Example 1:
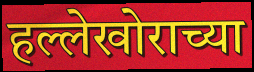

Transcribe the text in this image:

हल्लेखोराच्या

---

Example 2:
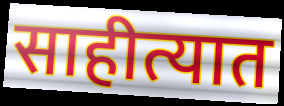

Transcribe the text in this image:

साहीत्यात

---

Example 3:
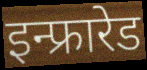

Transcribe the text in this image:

इन्फ्रारेड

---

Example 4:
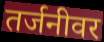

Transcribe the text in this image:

तर्जनीवर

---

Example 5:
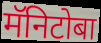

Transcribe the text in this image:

मॅनिटोबा